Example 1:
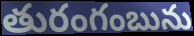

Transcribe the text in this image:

తురంగంబును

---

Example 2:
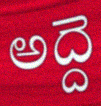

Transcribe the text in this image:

అద్దె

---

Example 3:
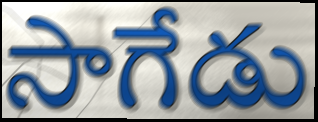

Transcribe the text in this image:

సాగేడు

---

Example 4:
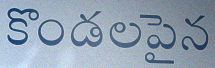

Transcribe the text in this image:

కొండలపైన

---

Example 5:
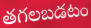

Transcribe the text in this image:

తగలబడటం